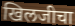
खिलजीचा